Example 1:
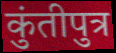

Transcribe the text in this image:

कुंतीपुत्र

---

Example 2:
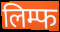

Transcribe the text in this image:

लिम्फ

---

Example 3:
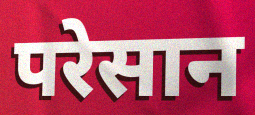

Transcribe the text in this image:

परेसान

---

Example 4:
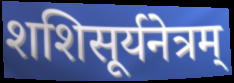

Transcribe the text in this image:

शशिसूर्यनेत्रम्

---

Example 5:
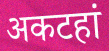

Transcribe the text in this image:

अकटहां